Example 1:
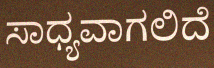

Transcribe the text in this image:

ಸಾಧ್ಯವಾಗಲಿದೆ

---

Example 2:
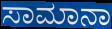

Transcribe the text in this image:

ಸಾಮಾನಾ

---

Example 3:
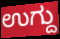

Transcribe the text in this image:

ಉಗ್ದು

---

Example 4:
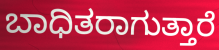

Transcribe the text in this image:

ಬಾಧಿತರಾಗುತ್ತಾರೆ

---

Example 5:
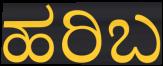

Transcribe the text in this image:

ಹರಿಬ